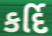
કર્દિ